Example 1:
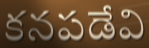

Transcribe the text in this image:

కనపడేవి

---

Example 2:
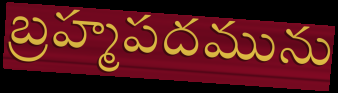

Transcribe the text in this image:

బ్రహ్మపదమును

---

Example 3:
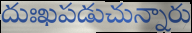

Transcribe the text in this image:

దుఃఖపడుచున్నారు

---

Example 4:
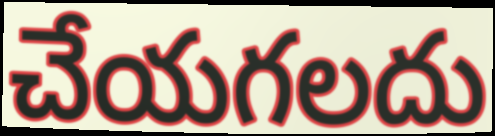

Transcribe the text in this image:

చేయగలదు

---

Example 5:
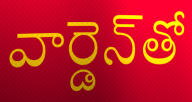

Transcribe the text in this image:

వార్డెన్‌తో